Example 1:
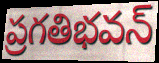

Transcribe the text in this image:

ప్రగతిభవన్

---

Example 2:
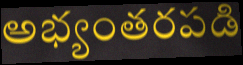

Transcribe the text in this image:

అభ్యంతరపడి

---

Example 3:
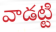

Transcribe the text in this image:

వాడట్టి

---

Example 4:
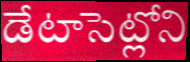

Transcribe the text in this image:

డేటాసెట్లోని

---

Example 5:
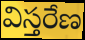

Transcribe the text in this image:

విస్తరేణ